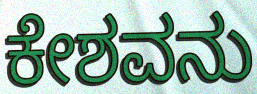
ಕೇಶವನು